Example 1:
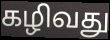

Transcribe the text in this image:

கழிவது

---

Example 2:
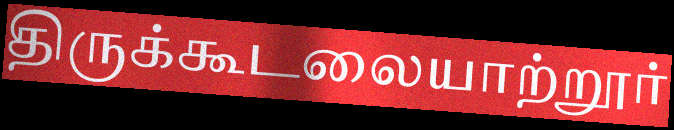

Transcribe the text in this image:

திருக்கூடலையாற்றூர்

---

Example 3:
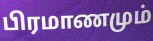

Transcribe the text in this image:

பிரமாணமும்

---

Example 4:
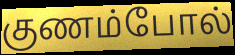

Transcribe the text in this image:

குணம்போல்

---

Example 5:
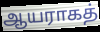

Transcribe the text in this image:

ஆயராகத்